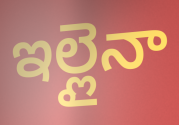
ఇల్లైనా